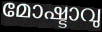
മോഷ്ടാവു